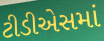
ટીડીએસમાં